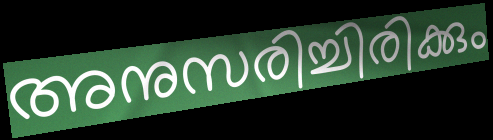
അനുസരിച്ചിരിക്കും